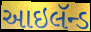
આઇલૅન્ડ